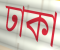
ঢাকা